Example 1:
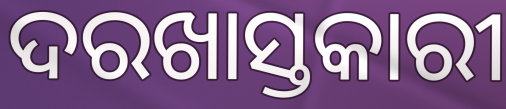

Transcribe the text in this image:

ଦରଖାସ୍ତକାରୀ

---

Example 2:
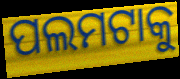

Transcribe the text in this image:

ପଲମଟାକୁ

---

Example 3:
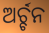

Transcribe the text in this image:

ଅର୍ଚ୍ଚନ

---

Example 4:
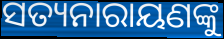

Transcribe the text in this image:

ସତ୍ୟନାରାୟଣଙ୍କୁ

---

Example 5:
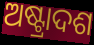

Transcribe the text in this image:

ଅଷ୍ଟ୍ରାଦଶ